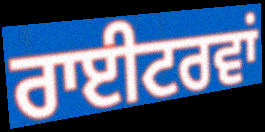
ਰਾਈਟਰਵਾਂ